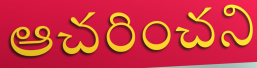
ఆచరించని